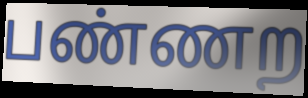
பண்ணற